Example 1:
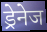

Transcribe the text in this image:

ड्रेनेज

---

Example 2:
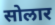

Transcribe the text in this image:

सोलार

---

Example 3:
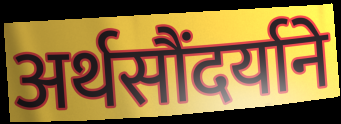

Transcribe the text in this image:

अर्थसौंदर्याने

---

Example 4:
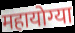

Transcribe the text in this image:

महायोग्या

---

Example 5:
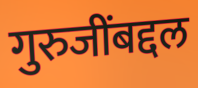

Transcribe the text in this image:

गुरुजींबद्दल